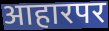
आहारपर